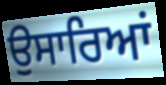
ਉਸਾਰਿਆਂ